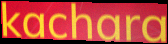
kachara